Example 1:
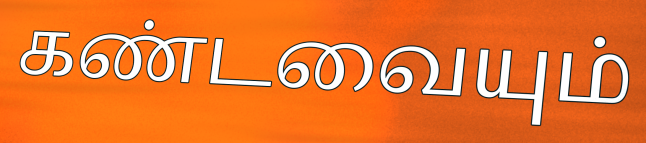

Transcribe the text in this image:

கண்டவையும்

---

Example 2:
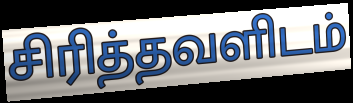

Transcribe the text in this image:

சிரித்தவளிடம்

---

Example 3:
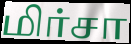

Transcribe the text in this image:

மிர்சா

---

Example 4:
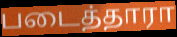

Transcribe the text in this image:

படைத்தாரா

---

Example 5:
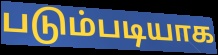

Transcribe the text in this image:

படும்படியாக